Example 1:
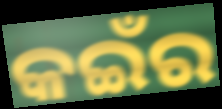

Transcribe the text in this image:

କଇଁର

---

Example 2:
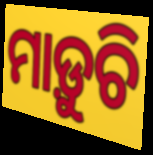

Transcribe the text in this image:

ମାଡ଼ୁଚି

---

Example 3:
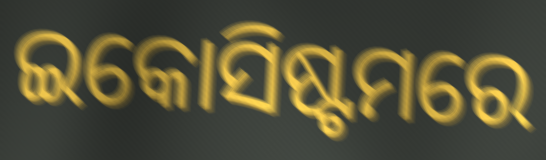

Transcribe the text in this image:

ଇକୋସିଷ୍ଟମରେ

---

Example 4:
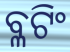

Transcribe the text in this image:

ବ୍ଳଟିଂ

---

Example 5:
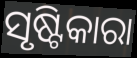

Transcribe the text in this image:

ସୃଷ୍ଟିକାରା